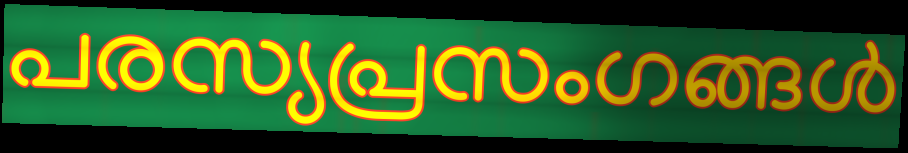
പരസ്യപ്രസംഗങ്ങൾ